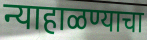
न्याहाळण्याचा